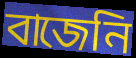
বাজেনি